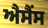
ਐਸੈਂਸ